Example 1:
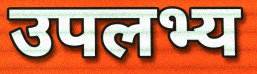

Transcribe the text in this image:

उपलभ्य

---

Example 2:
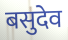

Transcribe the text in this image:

बसुदेव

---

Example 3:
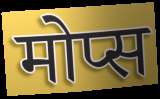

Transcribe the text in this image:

मोप्स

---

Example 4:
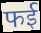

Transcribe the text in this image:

फई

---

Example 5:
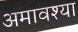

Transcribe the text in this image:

अमावश्या